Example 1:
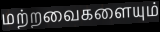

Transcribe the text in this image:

மற்றவைகளையும்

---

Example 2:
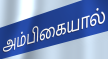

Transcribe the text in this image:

அம்பிகையால்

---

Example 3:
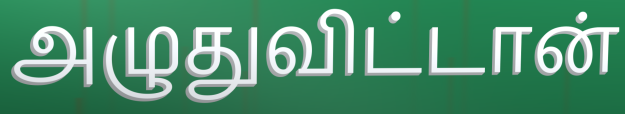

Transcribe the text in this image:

அழுதுவிட்டான்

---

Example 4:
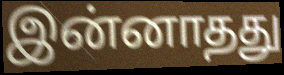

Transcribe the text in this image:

இன்னாதது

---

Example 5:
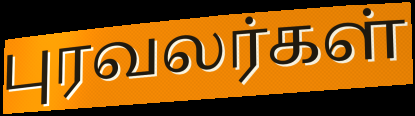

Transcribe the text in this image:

புரவலர்கள்